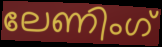
ലേണിംഗ്